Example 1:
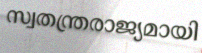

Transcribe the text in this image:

സ്വതന്ത്രരാജ്യമായി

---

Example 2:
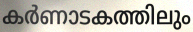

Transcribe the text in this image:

കർണാടകത്തിലും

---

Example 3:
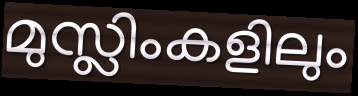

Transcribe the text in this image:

മുസ്ലിംകളിലും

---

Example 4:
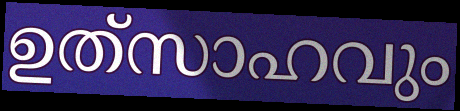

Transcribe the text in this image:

ഉത്‌സാഹവും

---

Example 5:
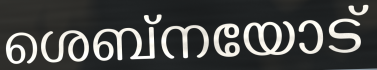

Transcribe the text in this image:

ശെബ്നയോട്